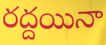
రద్దయినా